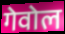
गेवोल